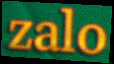
zalo